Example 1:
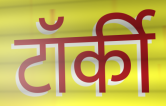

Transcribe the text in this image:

टॉर्की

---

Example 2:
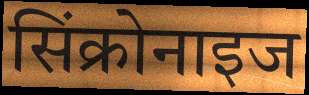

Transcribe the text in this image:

सिंक्रोनाइज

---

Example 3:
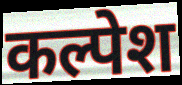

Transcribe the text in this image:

कल्पेश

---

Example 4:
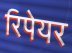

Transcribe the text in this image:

रिपेयर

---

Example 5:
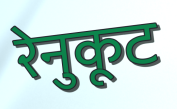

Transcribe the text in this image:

रेनुकूट